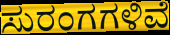
ಸುರಂಗಗಳಿವೆ